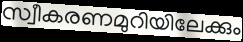
സ്വീകരണമുറിയിലേക്കും